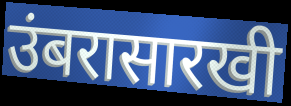
उंबरासारखी